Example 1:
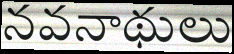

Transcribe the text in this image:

నవనాథులు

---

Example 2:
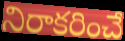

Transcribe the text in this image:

నిరాకరించే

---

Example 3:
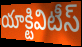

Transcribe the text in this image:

యాక్టివిటీస్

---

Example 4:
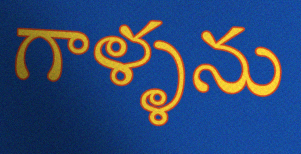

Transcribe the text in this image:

గాళ్ళను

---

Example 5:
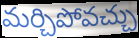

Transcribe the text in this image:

మర్చిపోవచ్చు